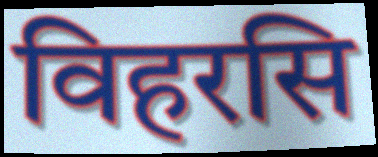
विहरसि